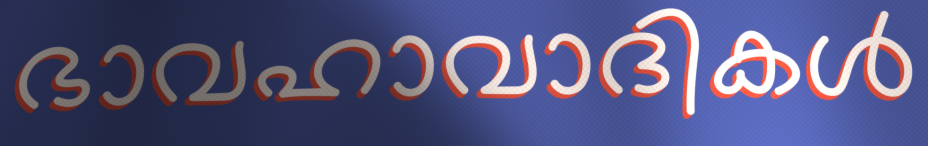
ഭാവഹാവാദികൾ